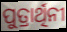
ପୁତ୍ରାର୍ଥିନୀ